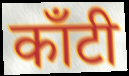
काँटी